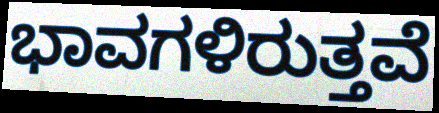
ಭಾವಗಳಿರುತ್ತವೆ